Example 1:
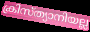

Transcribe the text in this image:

ക്രിസ്ത്യാനിയല്ല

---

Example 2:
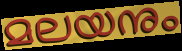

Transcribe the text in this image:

മലയനും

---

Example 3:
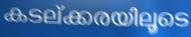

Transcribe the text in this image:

കടല്ക്കരയിലൂടെ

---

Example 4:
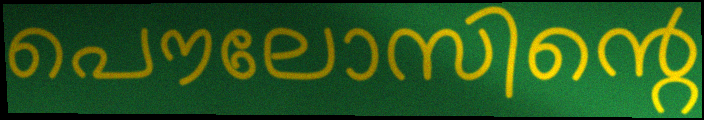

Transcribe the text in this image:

പൌലോസിന്റെ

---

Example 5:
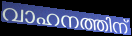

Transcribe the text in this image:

വാഹനത്തിന്